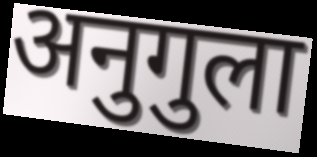
अनुगुला